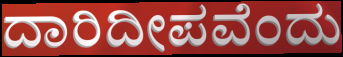
ದಾರಿದೀಪವೆಂದು